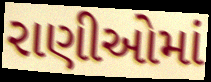
રાણીઓમાં